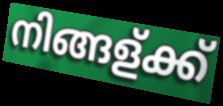
നിങ്ങള്ക്ക്